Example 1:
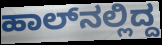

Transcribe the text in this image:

ಹಾಲ್‌ನಲ್ಲಿದ್ದ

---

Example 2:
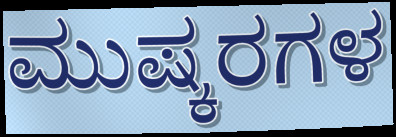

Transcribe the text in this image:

ಮುಷ್ಕರಗಳ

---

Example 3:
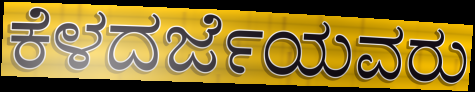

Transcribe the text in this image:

ಕೆಳದರ್ಜೆಯವರು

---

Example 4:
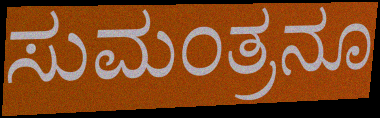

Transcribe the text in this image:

ಸುಮಂತ್ರನೂ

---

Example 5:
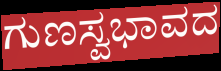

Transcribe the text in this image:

ಗುಣಸ್ವಭಾವದ